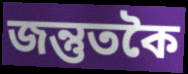
জন্তুতকৈ